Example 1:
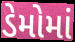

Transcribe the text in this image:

ડેમોમાં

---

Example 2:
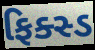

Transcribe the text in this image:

ફિક્સ્ડ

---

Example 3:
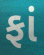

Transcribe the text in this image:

ફાં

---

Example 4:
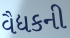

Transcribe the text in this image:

વૈદ્યકની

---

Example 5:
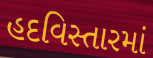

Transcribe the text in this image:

હદવિસ્તારમાં